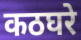
कठघरे